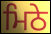
ਮਿਠੇ